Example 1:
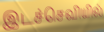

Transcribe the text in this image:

இடச்செவியில்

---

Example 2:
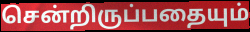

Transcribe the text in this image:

சென்றிருப்பதையும்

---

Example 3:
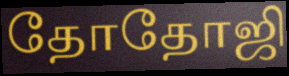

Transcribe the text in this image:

தோதோஜி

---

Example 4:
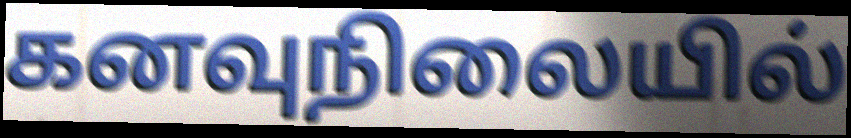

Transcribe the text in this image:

கனவுநிலையில்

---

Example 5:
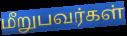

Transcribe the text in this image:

மீறுபவர்கள்